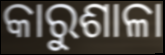
କାରୁଶାଳା